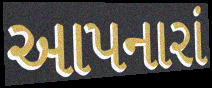
આપનારાં